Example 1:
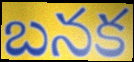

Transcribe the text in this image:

బనక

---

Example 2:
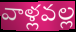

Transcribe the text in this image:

వాళ్లవల్ల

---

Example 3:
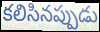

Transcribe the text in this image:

కలిసినప్పుడు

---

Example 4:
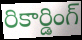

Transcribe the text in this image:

రికార్డింగ్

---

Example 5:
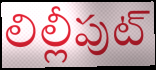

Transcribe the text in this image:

లిల్లీపుట్